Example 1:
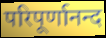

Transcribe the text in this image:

परिपूर्णानन्द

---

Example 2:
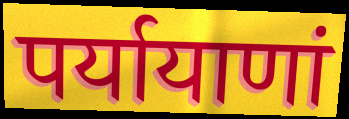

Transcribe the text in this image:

पर्यायाणां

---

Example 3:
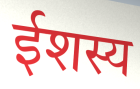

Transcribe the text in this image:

ईशस्य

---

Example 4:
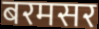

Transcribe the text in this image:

बरमसर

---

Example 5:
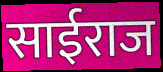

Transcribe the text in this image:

साईराज